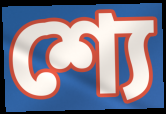
শ্যে